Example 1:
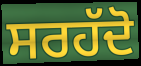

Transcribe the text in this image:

ਸਰਹੱਦੋ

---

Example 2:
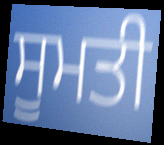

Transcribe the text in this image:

ਸੂਮਤੀ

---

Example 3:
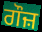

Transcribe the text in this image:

ਗੌਜ਼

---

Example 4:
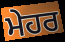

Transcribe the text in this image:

ਮੇਹਰ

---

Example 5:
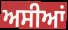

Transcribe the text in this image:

ਅਸੀਆਂ